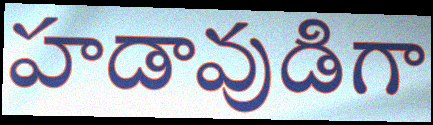
హడావుడిగా